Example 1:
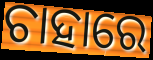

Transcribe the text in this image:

ଚାହାରେ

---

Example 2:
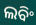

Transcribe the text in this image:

ଲବିଂ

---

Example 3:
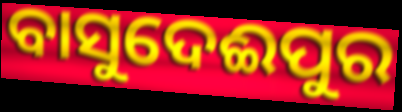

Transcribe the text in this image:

ବାସୁଦେଈପୁର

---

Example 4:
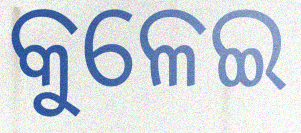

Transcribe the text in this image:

କୁଳେଇ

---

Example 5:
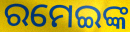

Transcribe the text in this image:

ରମେଇଙ୍କ